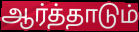
ஆர்த்தாடும்